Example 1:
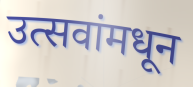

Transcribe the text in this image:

उत्सवांमधून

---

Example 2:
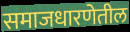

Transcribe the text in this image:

समाजधारणेतील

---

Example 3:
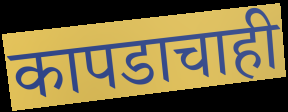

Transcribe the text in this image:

कापडाचाही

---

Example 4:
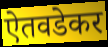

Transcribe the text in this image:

ऐतवडेकर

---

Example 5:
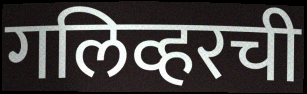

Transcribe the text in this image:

गलिव्हरची